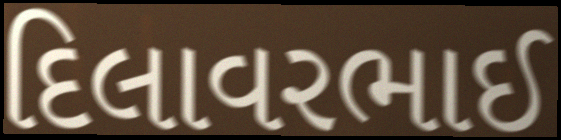
દિલાવરભાઈ